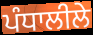
ਪੰਧਾਲੀਲੇ